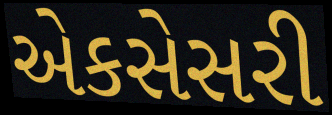
એકસેસરી